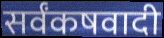
सर्वंकषवादी